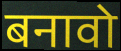
बनावो